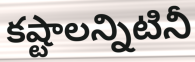
కష్టాలన్నిటినీ